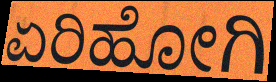
ಏರಿಹೋಗಿ